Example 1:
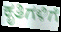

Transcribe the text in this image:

ಕೃತಿಗಳಿಗೆ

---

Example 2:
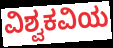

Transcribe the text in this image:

ವಿಶ್ವಕವಿಯ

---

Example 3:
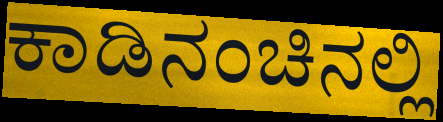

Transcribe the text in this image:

ಕಾಡಿನಂಚಿನಲ್ಲಿ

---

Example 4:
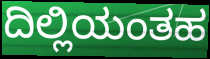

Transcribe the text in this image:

ದಿಲ್ಲಿಯಂತಹ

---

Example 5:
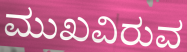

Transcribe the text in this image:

ಮುಖವಿರುವ